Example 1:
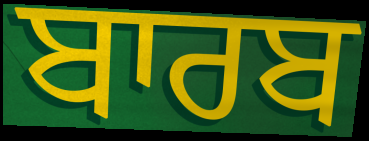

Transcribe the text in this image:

ਬਾਰਬ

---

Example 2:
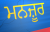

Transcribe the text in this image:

ਮਨਜ਼ੂਰ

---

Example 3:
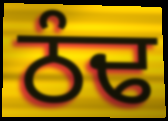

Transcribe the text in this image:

ਠੰਢ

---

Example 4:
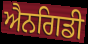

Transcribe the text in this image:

ਐਨਗਿਡੀ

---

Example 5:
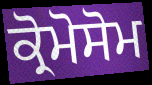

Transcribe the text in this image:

ਕ੍ਰੋਮੋਸੋਮ